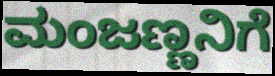
ಮಂಜಣ್ಣನಿಗೆ